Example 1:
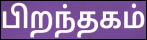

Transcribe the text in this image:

பிறந்தகம்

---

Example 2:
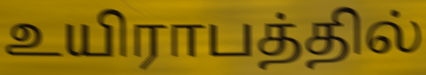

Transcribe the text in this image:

உயிராபத்தில்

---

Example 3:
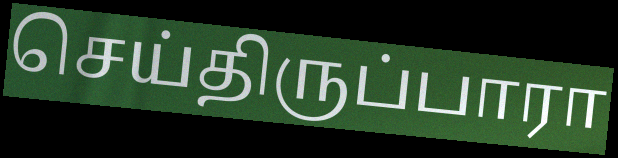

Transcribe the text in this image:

செய்திருப்பாரா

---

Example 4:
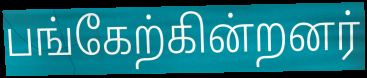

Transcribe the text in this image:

பங்கேற்கின்றனர்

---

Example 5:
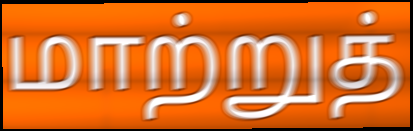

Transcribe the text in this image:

மாற்றுத்